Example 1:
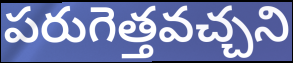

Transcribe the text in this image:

పరుగెత్తవచ్చని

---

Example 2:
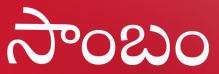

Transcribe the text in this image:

సాంబం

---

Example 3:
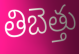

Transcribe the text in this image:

తిబెత్తు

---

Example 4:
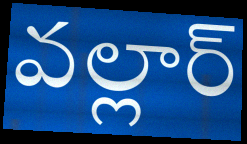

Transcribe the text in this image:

వల్లార్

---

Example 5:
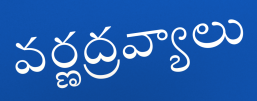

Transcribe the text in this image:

వర్ణద్రవ్యాలు